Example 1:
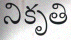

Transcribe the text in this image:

నికృతి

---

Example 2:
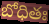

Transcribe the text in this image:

బోధితః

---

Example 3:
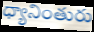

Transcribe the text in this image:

ధ్యానింతురు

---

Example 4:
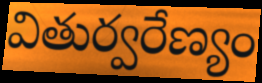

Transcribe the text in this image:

వితుర్వరేణ్యం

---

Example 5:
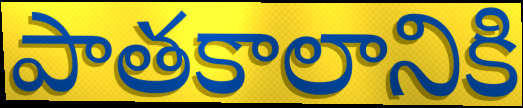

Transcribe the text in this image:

పాతకాలానికి